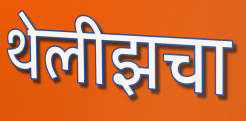
थेलीझचा